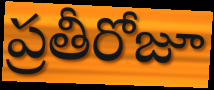
ప్రతీరోజూ